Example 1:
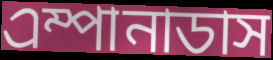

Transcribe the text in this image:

এম্পানাডাস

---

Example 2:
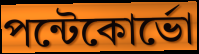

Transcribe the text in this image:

পন্টেকোর্ভো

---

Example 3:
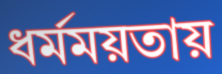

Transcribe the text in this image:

ধর্মময়তায়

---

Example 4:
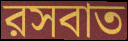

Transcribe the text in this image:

রসবাত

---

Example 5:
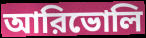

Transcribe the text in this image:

আরিভোলি